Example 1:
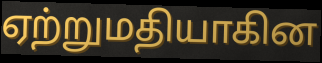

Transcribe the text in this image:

ஏற்றுமதியாகின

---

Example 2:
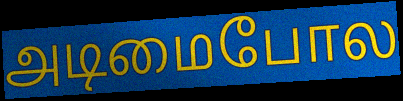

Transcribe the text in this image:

அடிமைபோல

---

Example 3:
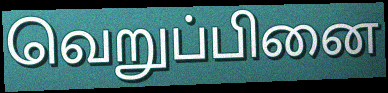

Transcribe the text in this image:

வெறுப்பினை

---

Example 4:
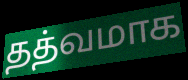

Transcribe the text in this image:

தத்வமாக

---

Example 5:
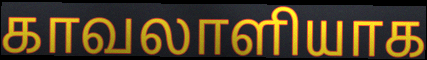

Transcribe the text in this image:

காவலாளியாக